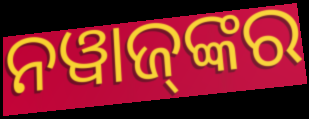
ନୱାଜ୍‍ଙ୍କର